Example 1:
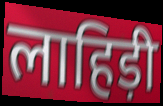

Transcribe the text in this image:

लाहिड़ी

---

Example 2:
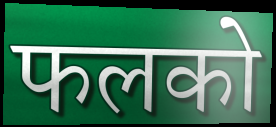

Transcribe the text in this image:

फलको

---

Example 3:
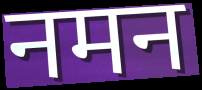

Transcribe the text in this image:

नमन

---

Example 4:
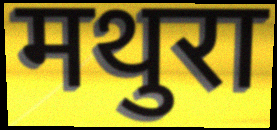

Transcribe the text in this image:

मथुरा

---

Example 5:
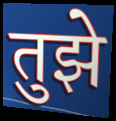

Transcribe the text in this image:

तुझे